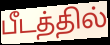
பீடத்தில்